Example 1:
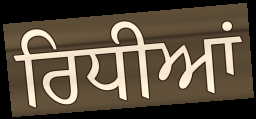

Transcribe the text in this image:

ਰਿਧੀਆਂ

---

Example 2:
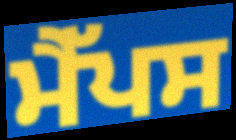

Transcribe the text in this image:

ਮੈੱਪਸ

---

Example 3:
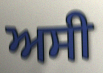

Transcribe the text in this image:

ਅਸੀ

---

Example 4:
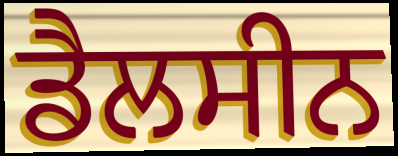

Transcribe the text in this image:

ਡੈਲਸੀਨ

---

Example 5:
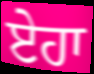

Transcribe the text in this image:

ਏਹਾ